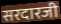
सरदारजी